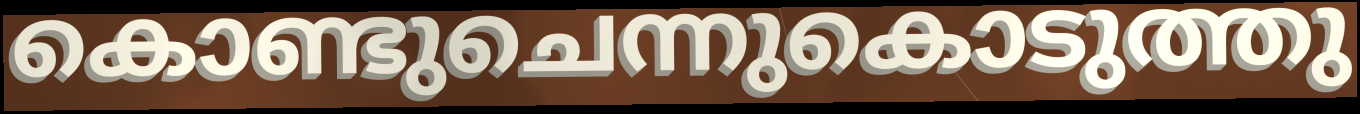
കൊണ്ടുചെന്നുകൊടുത്തു